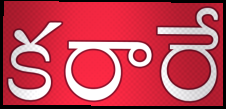
కరారే